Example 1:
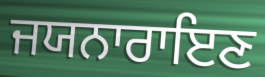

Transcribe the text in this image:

ਜਯਨਾਰਾਇਣ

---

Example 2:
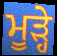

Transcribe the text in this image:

ਮੂੜ੍ਹੇ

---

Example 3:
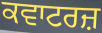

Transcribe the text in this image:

ਕਵਾਟਰਜ਼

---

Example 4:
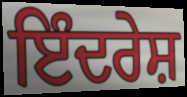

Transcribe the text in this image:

ਇੰਦਰੇਸ਼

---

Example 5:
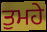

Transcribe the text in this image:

ਤੁਮਹੇ